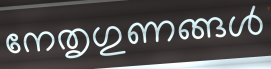
നേതൃഗുണങ്ങൾ